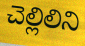
చెల్లిలిని